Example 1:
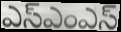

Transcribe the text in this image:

ఎస్ఎంఎస్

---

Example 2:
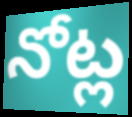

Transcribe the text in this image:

నోట్ల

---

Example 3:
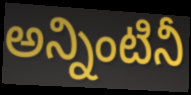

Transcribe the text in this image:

అన్నింటినీ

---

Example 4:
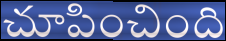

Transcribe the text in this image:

చూపించింది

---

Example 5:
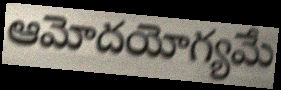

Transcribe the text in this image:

ఆమోదయోగ్యమే